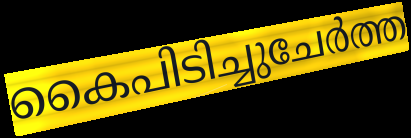
കൈപിടിച്ചുചേർത്ത